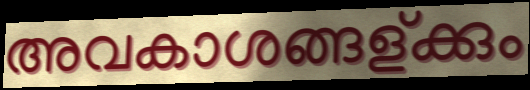
അവകാശങ്ങള്ക്കും